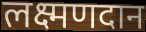
लक्ष्मणदान